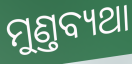
ମୁଣ୍ତବ୍ୟଥା